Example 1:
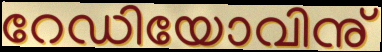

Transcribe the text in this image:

റേഡിയോവിനു്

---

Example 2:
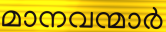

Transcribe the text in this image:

മാനവന്മാർ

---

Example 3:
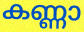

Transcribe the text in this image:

കണ്ണാ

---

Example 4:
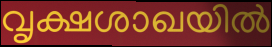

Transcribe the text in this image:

വൃക്ഷശാഖയിൽ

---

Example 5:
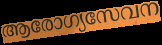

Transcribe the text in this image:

ആരോഗ്യസേവന